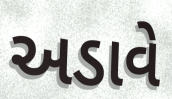
અડાવે